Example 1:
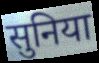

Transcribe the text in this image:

सुनिया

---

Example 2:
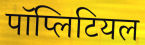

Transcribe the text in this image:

पॉप्लिटियल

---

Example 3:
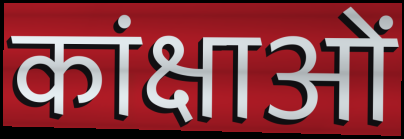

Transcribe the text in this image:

कांक्षाओं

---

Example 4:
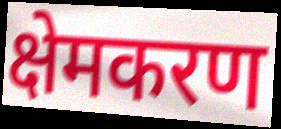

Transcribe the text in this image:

क्षेमकरण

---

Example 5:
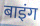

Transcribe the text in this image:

बाइंग